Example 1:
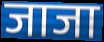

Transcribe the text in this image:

जाजा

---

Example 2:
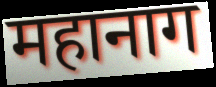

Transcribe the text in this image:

महानाग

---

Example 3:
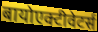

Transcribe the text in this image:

बायोएक्टीवेटर्स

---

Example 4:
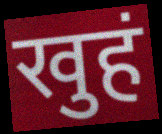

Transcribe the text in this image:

खुहं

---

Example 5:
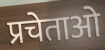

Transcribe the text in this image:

प्रचेताओ